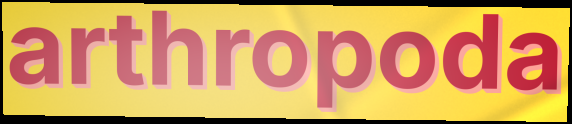
arthropoda